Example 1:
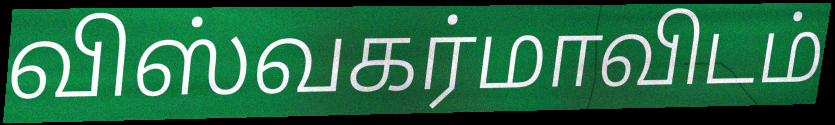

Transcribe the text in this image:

விஸ்வகர்மாவிடம்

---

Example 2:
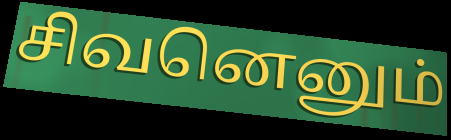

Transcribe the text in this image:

சிவனெனும்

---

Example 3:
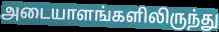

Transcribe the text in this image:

அடையாளங்களிலிருந்து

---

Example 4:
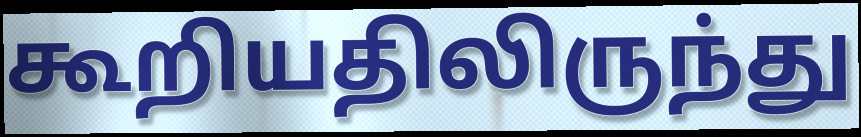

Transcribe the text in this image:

கூறியதிலிருந்து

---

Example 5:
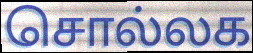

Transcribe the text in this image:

சொல்லக